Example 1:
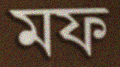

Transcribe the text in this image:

মফ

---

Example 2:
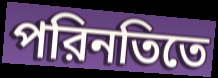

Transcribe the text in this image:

পরিনতিতে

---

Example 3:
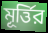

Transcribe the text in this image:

মূর্ত্তির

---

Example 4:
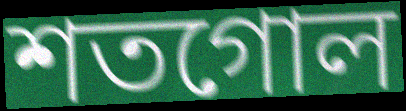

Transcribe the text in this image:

শতগোল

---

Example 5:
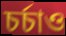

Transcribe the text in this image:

চর্চাও